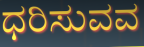
ಧರಿಸುವವ